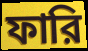
ফারি